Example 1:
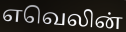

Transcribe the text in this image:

எவெலின்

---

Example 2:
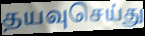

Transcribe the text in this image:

தயவுசெய்து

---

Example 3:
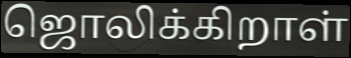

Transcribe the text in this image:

ஜொலிக்கிறாள்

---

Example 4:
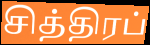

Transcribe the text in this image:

சித்திரப்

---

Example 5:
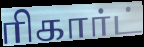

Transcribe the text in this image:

ரிகார்ட்